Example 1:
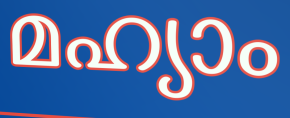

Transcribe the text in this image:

മഹ്യാം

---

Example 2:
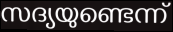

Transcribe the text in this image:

സദ്യയുണ്ടെന്ന്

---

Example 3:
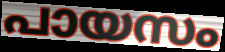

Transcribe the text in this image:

പായസം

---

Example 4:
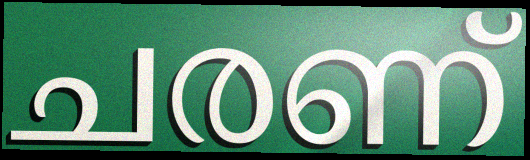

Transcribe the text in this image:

ചരണ്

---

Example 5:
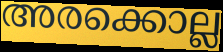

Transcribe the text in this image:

അരക്കൊല്ല